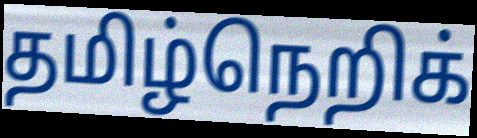
தமிழ்நெறிக்